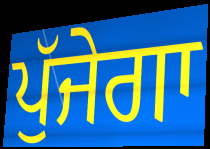
ਪੁੱਜੇਗਾ